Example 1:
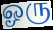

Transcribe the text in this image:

ஓரு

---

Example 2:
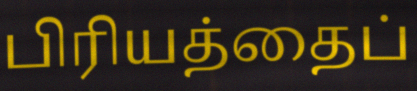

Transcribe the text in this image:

பிரியத்தைப்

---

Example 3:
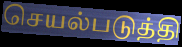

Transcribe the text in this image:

செயல்படுத்தி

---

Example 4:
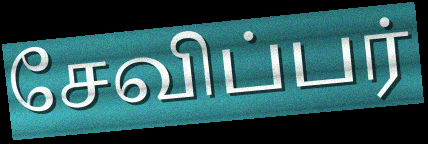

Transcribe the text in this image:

சேவிப்பர்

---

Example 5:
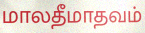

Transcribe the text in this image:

மாலதீமாதவம்